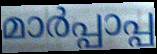
മാർപ്പാപ്പ